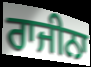
ਰਾਜੀਨਾ